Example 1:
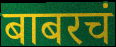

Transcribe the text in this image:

बाबरचं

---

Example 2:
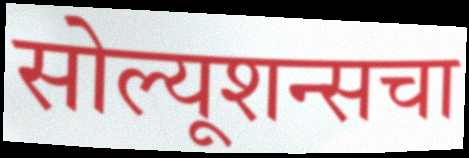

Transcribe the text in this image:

सोल्यूशन्सचा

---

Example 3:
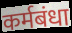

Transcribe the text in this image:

कर्मबंधा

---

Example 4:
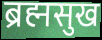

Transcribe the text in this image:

ब्रह्मसुख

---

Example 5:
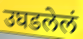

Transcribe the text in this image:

उघडलेलं